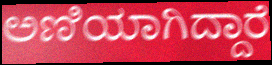
ಅಣಿಯಾಗಿದ್ದಾರೆ